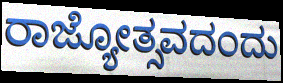
ರಾಜ್ಯೋತ್ಸವದಂದು